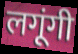
लगूंगी